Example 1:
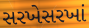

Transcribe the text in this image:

સરખેસરખાં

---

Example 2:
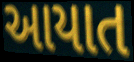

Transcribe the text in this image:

આયાત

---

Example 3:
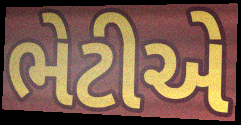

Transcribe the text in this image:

ભેટીએ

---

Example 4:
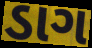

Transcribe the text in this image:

ડાગ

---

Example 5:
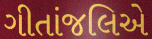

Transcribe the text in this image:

ગીતાંજલિએ